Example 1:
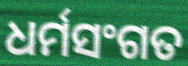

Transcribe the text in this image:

ଧର୍ମସଂଗତ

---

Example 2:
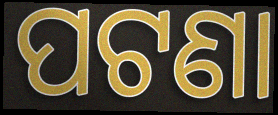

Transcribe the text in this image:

ପଟଣା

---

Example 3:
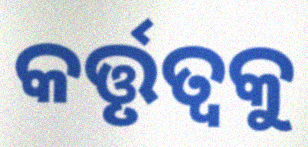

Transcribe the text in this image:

କର୍ତ୍ତୃତ୍ୱକୁ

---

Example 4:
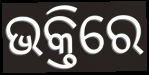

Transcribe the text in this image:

ଭକ୍ତିରେ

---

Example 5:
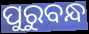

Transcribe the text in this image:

ପୁରୁବନ୍ଧ